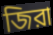
জিরা